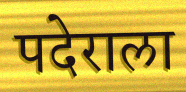
पदेराला